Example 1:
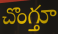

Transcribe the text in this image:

చొంగ్తూ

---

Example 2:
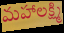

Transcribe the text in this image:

మహాలక్ష్మి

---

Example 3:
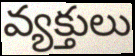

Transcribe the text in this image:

వ్యక్తులు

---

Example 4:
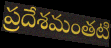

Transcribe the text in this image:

ప్రదేశమంతటి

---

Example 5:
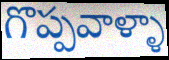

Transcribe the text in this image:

గొప్పవాళ్ళా